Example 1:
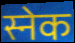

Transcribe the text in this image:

स्‍नेक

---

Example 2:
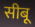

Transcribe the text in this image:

सीबू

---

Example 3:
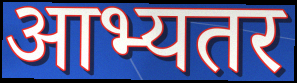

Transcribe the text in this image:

आभ्यतर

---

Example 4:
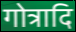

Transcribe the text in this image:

गोत्रादि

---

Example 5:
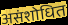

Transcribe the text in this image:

असंशोधित